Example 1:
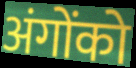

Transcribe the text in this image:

अंगोंको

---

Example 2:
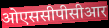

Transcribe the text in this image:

ओएससीपीसीआर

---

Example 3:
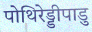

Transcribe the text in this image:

पोथिरेड्डीपाडु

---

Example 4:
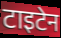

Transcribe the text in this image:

टाइटेन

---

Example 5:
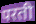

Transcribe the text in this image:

परती